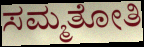
ಸಮ್ಮತೋತಿ